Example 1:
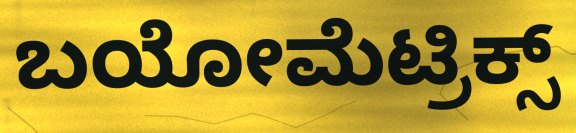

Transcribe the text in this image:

ಬಯೋಮೆಟ್ರಿಕ್ಸ್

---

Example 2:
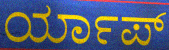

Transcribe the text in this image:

ರ್ಯಾಪ್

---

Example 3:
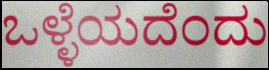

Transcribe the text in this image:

ಒಳ್ಳೆಯದೆಂದು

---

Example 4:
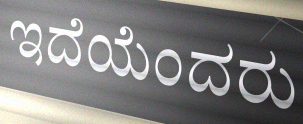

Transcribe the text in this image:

ಇದೆಯೆಂದರು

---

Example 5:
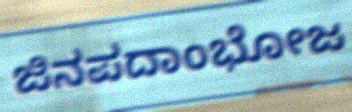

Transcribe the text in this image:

ಜಿನಪದಾಂಭೋಜ